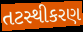
તટસ્થીકરણ